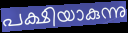
പക്ഷിയാകുന്നു